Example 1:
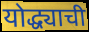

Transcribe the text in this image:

योद्ध्याची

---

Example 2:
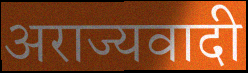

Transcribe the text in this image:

अराज्यवादी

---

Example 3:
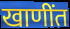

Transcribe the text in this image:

खाणींत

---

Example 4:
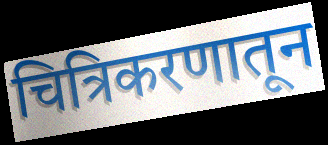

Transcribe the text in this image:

चित्रिकरणातून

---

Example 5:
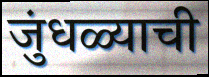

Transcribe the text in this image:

जुंधळ्याची